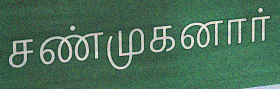
சண்முகனார்